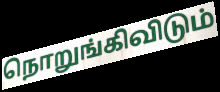
நொறுங்கிவிடும்